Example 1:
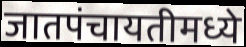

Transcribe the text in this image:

जातपंचायतीमध्ये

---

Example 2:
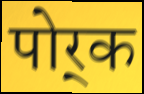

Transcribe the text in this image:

पोर्क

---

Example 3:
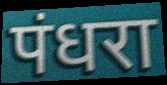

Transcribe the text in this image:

पंधरा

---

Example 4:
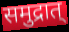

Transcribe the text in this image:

समुद्रात्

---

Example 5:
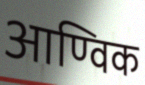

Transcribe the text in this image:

आण्विक